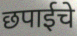
छपाईचे